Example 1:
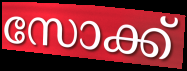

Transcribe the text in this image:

സോക്ക്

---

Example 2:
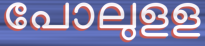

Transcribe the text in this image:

പോലുളള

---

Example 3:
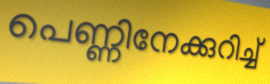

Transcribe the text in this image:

പെണ്ണിനേക്കുറിച്ച്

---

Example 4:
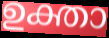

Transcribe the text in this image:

ഉക്താ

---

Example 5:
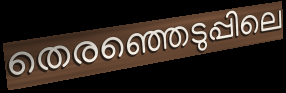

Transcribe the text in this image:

തെരഞ്ഞെടുപ്പിലെ